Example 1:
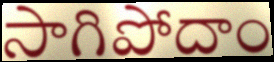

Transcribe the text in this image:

సాగిపోదాం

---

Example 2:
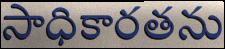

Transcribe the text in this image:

సాధికారతను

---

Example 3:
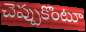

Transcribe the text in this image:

చెప్పుకొంటూ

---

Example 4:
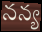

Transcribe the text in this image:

నన్య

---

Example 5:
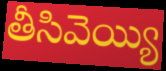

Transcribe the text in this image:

తీసివెయ్యి